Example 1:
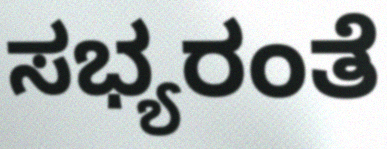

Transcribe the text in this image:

ಸಭ್ಯರಂತೆ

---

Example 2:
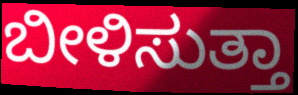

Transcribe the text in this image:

ಬೀಳಿಸುತ್ತಾ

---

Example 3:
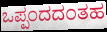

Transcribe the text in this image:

ಒಪ್ಪಂದದಂತಹ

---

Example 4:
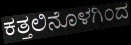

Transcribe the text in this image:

ಕತ್ತಲಿನೊಳಗಿಂದ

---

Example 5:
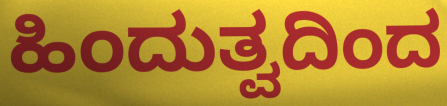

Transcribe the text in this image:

ಹಿಂದುತ್ವದಿಂದ